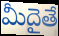
మీదైతే